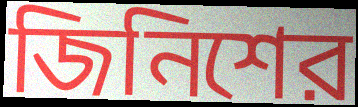
জিনিশের